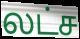
லட்ச